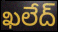
ఖలేద్